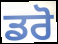
ਡਰੋ